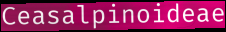
Ceasalpinoideae